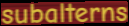
subalterns